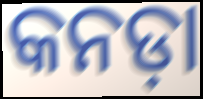
କନଡ଼ା